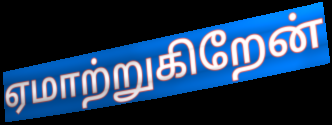
ஏமாற்றுகிறேன்